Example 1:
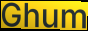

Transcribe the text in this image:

Ghum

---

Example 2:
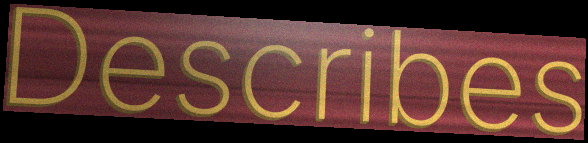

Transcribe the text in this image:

Describes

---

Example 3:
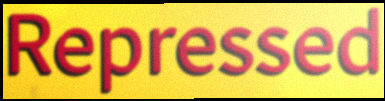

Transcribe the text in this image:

Repressed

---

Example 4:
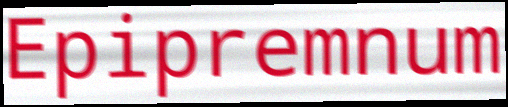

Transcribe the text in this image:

Epipremnum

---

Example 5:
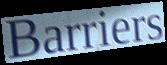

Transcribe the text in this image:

Barriers